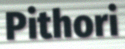
Pithori